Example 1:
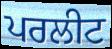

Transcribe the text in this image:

ਪਰਲੀਟ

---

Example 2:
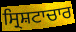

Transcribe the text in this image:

ਸ੍ਰਿਸ਼ਟਾਚਾਰ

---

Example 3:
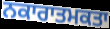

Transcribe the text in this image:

ਨਕਾਰਾਤਮਕਤਾ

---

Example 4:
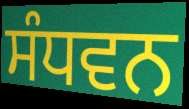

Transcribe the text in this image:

ਸੰਧਵਨ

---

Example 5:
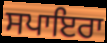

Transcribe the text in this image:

ਸਪਾਇਰਾ